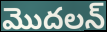
మొదలన్